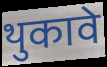
थुकावे